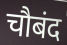
चौबंद